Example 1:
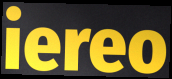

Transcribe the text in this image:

iereo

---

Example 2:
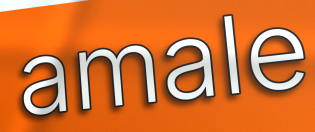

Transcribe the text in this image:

amale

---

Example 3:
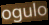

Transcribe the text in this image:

ogulo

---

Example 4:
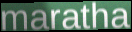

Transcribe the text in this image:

maratha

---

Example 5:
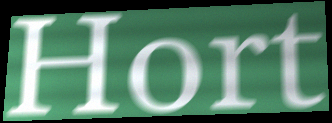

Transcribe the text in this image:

Hort